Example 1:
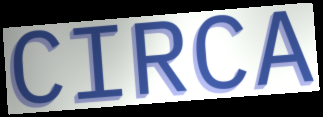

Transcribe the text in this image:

CIRCA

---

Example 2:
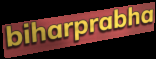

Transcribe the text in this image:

biharprabha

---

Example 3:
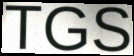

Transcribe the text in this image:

TGS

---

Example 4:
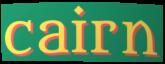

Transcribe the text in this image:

cairn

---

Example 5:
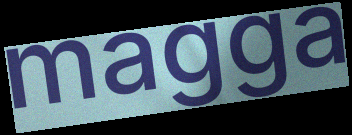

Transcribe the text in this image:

magga